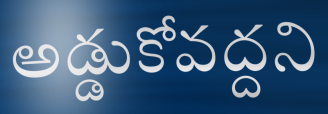
అడ్డుకోవద్దని